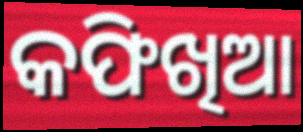
କଫିଖିଆ